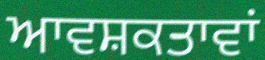
ਆਵਸ਼ਕਤਾਵਾਂ